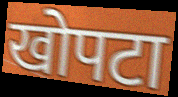
खोपटा